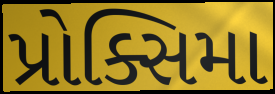
પ્રોક્સિમા